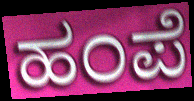
ಹಂಪೆ